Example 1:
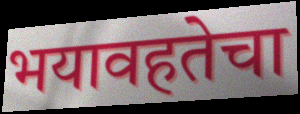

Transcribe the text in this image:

भयावहतेचा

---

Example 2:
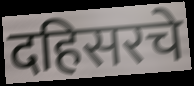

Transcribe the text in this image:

दहिसरचे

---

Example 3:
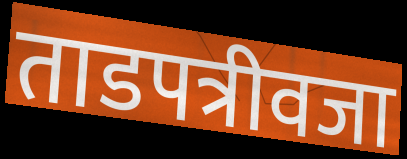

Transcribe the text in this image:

ताडपत्रीवजा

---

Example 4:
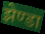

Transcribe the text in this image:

झेण्डा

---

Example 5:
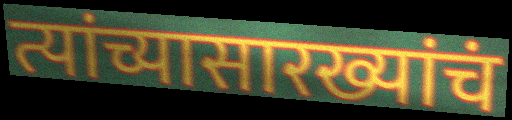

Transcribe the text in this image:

त्यांच्यासारख्यांचं